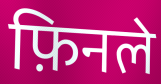
फ़िनले